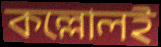
কল্লোলই